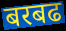
बरबढ